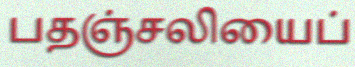
பதஞ்சலியைப்